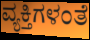
ವ್ಯಕ್ತಿಗಳಂತೆ